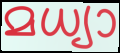
മധ്യാ